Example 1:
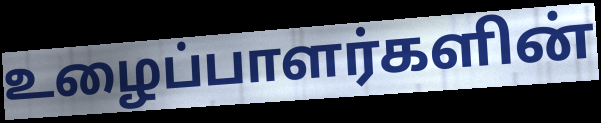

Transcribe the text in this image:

உழைப்பாளர்களின்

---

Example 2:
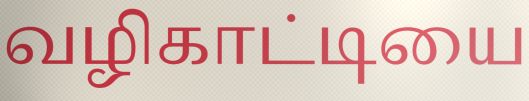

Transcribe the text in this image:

வழிகாட்டியை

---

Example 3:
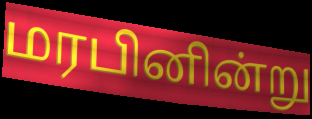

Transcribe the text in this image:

மரபினின்று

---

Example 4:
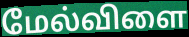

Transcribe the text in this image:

மேல்விளை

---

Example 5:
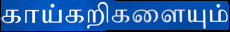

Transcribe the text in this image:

காய்கறிகளையும்